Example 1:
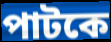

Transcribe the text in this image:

পাটকে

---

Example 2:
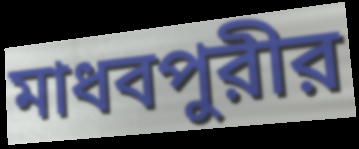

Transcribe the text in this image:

মাধবপুরীর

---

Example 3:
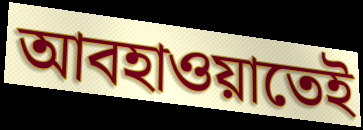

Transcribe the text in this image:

আবহাওয়াতেই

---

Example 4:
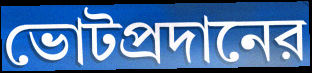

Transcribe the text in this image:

ভোটপ্রদানের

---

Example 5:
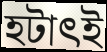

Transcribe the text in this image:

হটাৎই